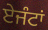
ਏਜੰਟਾਂ